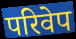
परिवेप